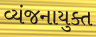
વ્યંજનાયુક્ત